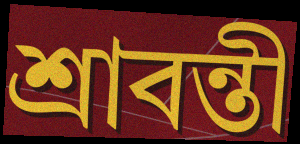
শ্রাবন্তী